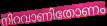
നിറവാണിതോണം